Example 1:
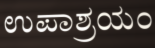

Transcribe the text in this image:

ಉಪಾಶ್ರಯಂ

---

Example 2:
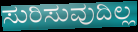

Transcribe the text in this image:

ಸುರಿಸುವುದಿಲ್ಲ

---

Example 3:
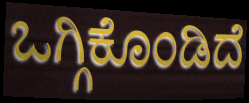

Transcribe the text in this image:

ಒಗ್ಗಿಕೊಂಡಿದೆ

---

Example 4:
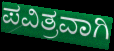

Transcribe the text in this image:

ಪವಿತ್ರವಾಗಿ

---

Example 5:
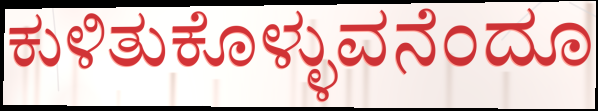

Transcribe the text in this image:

ಕುಳಿತುಕೊಳ್ಳುವನೆಂದೂ